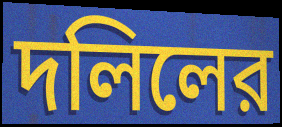
দলিলের